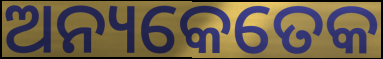
ଅନ୍ୟକେତେକ